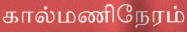
கால்மணிநேரம்